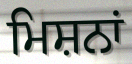
ਮਿਸ਼ਨਾਂ